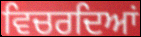
ਵਿਚਰਦਿਆਂ